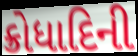
ક્રોધાદિની